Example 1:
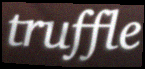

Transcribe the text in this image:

truffle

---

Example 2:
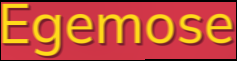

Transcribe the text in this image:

Egemose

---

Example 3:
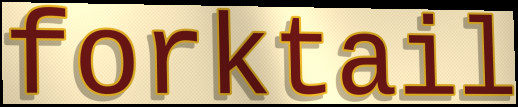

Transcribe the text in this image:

forktail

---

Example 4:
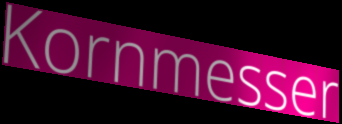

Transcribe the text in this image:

Kornmesser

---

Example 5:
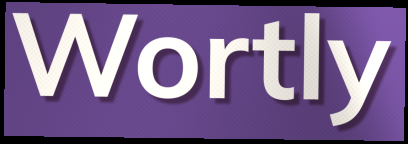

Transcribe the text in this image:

Wortly